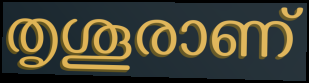
തൃശൂരാണ്